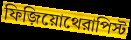
ফিজ়িয়োথেরাপিস্ট